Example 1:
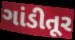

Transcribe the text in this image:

ગાંડીતૂર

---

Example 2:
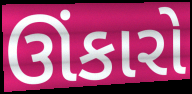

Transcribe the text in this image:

ઊંકારો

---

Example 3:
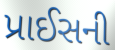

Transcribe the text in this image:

પ્રાઈસની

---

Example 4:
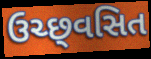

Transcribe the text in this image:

ઉચ્છ્‌વસિત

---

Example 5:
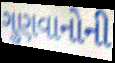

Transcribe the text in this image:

ગુણવાનોની